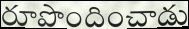
రూపొందించాడు